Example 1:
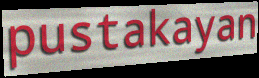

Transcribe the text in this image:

pustakayan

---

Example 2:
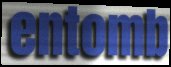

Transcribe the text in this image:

entomb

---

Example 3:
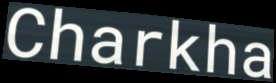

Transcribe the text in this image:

Charkha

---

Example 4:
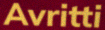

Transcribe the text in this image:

Avritti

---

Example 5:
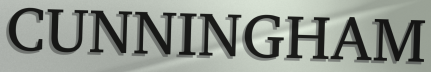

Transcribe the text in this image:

CUNNINGHAM